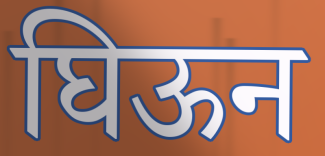
घिऊन